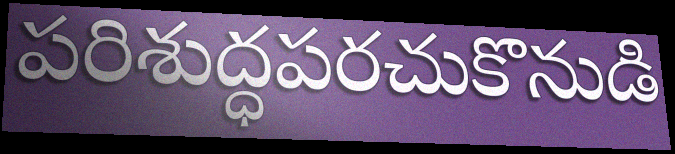
పరిశుద్ధపరచుకొనుడి